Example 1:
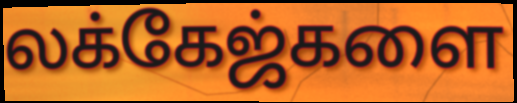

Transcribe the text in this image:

லக்கேஜ்களை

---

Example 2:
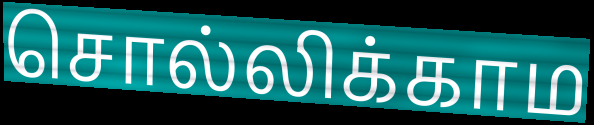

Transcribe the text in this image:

சொல்லிக்காம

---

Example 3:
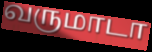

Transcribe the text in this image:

வருமாடா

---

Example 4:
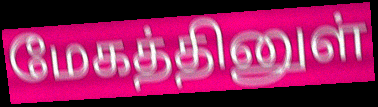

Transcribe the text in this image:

மேகத்தினுள்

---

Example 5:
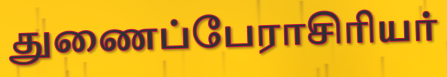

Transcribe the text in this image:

துணைப்பேராசிரியர்